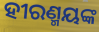
ହୀରଣ୍ମୟଙ୍କ